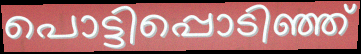
പൊട്ടിപ്പൊടിഞ്ഞ്